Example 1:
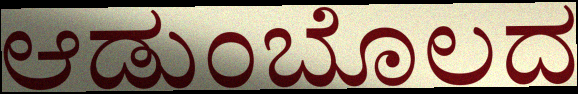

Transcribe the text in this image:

ಆಡುಂಬೊಲದ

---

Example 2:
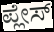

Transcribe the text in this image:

ಪ್ಲೇಸ್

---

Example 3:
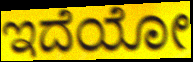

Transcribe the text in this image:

ಇದೆಯೋ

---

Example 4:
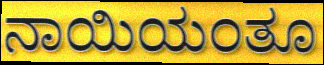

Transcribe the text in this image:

ನಾಯಿಯಂತೂ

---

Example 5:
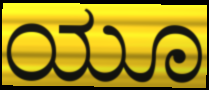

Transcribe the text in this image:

ಯೂ